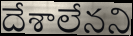
దేశాలేనని